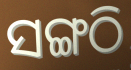
ସଙ୍ଗଠି